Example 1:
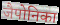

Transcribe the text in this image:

जैपोनिका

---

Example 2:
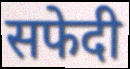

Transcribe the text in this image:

सफेदी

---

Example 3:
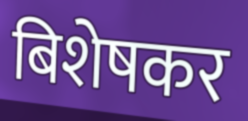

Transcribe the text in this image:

बिशेषकर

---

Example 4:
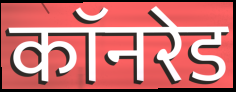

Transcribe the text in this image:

कॉनरेड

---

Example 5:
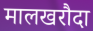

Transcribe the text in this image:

मालखरौदा